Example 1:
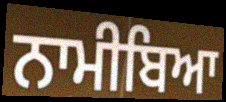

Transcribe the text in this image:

ਨਾਮੀਬਿਆ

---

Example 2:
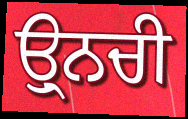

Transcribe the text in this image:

ਉ੍ਨਚੀ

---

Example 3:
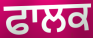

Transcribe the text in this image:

ਫਾਲਕ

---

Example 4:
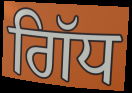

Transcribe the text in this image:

ਗਿੱਧ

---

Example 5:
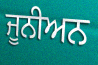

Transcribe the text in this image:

ਜੂਨੀਅਨ